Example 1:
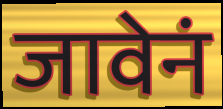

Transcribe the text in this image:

जावेनं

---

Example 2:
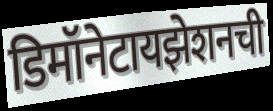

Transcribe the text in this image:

डिमॉनेटायझेशनची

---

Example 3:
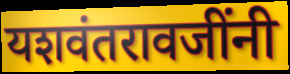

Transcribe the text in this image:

यशवंतरावजींनी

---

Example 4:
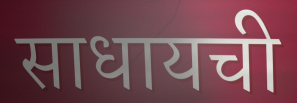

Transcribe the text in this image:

साधायची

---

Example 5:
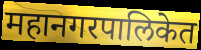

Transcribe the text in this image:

महानगरपालिकेत